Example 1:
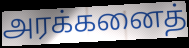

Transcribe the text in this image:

அரக்கனைத்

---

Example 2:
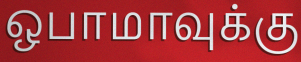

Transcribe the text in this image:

ஒபாமாவுக்கு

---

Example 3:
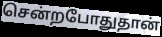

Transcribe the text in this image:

சென்றபோதுதான்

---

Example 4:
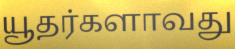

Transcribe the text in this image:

யூதர்களாவது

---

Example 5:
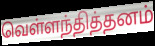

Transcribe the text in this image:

வெள்ளந்தித்தனம்